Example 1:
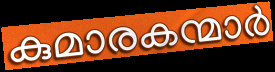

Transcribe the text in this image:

കുമാരകന്മാർ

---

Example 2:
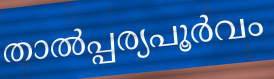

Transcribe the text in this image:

താൽപ്പര്യപൂർവം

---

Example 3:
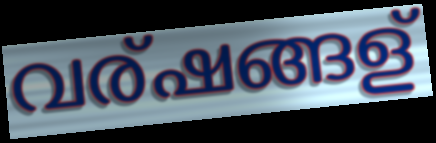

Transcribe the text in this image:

വര്ഷങ്ങള്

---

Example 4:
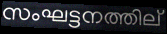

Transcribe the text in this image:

സംഘട്ടനത്തില്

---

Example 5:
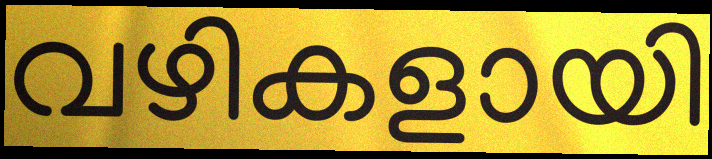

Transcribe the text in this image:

വഴികളായി